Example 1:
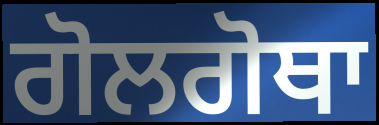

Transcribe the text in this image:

ਗੋਲਗੋਥਾ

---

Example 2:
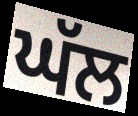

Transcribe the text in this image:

ਘੱਲ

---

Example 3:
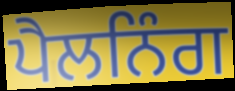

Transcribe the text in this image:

ਪੈਲਨਿੰਗ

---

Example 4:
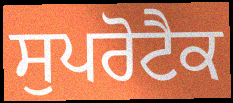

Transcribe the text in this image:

ਸੁਪਰੋਟੈਕ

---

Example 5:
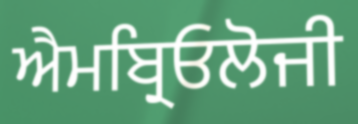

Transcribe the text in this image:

ਐਮਬ੍ਰਿਓਲੋਜੀ